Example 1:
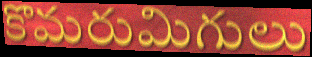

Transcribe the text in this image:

కొమరుమిగులు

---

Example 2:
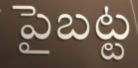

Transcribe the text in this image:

పైబట్ట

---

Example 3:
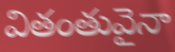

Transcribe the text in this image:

వితంతువైనా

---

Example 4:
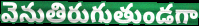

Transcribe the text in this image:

వెనుతిరుగుతుండగా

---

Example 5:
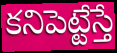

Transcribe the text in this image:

కనిపెట్టేస్తే